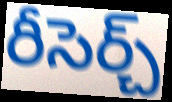
రీసెర్చ్